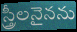
స్త్రీలనైనను